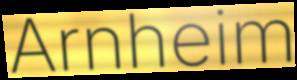
Arnheim